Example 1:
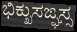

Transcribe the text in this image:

ಭಿಕ್ಖುಸಙ್ಘಸ್ಸ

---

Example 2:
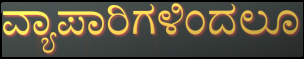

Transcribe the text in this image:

ವ್ಯಾಪಾರಿಗಳಿಂದಲೂ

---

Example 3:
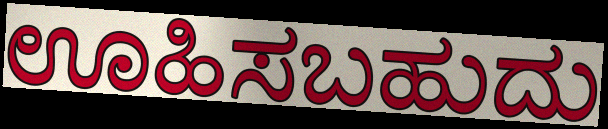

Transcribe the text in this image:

ಊಹಿಸಬಹುದು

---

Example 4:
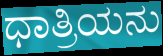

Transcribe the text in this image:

ಧಾತ್ರಿಯನು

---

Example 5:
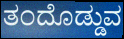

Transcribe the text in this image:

ತಂದೊಡ್ಡುವ